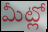
మీట్లో